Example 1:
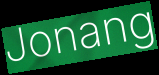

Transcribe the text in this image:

Jonang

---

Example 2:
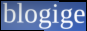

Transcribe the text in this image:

blogige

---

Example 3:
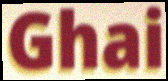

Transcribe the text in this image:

Ghai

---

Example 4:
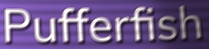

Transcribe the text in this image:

Pufferfish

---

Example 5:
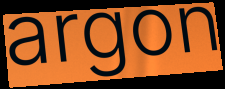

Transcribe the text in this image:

argon